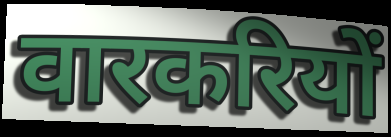
वारकरियों